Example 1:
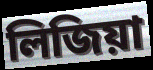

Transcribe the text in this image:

লিজিয়া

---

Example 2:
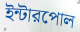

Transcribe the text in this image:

ইন্টারপোল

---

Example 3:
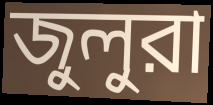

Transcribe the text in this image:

জুলুরা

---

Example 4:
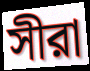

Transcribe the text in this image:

সীরা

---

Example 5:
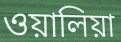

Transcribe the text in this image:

ওয়ালিয়া